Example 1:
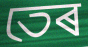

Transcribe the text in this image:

তেৰ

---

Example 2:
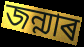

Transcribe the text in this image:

জন্মাৰ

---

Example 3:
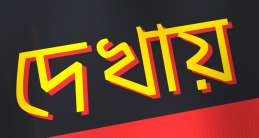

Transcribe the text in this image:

দেখায়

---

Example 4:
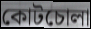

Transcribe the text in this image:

কোটচোলা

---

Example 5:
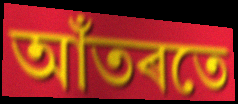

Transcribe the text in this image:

আঁতৰতে